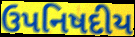
ઉપનિષદીય